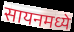
सायनमध्ये